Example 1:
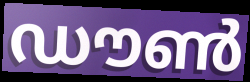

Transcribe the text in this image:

ഡൗൺ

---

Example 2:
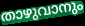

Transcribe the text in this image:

താഴുവാനും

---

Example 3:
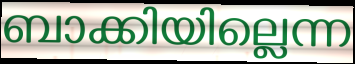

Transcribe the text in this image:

ബാക്കിയില്ലെന്ന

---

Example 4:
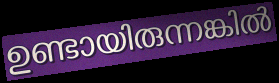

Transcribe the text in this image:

ഉണ്ടായിരുന്നങ്കിൽ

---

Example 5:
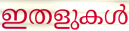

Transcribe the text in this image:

ഇതളുകൾ